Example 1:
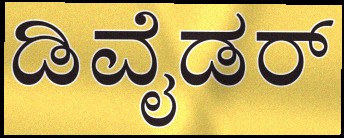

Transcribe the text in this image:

ಡಿವೈಡರ್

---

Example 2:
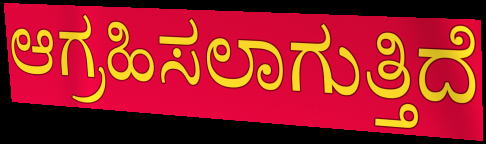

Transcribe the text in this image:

ಆಗ್ರಹಿಸಲಾಗುತ್ತಿದೆ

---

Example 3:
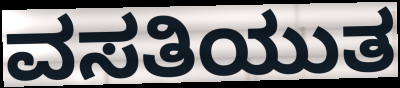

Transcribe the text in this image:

ವಸತಿಯುತ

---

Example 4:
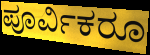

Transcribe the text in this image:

ಪೂರ್ವಿಕರೂ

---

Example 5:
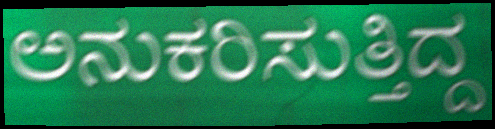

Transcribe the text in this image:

ಅನುಕರಿಸುತ್ತಿದ್ದ